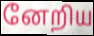
னேறிய